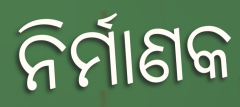
ନିର୍ମାଣକ